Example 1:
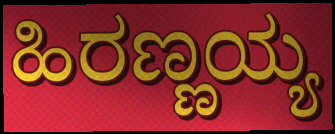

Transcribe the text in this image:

ಹಿರಣ್ಣಯ್ಯ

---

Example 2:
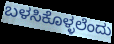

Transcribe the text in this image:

ಬಳಸಿಕೊಳ್ಳಲೆಂದು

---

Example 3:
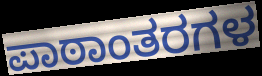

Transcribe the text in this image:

ಪಾಠಾಂತರಗಳ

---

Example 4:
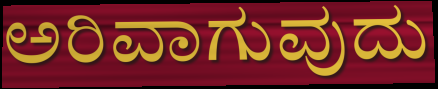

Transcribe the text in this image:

ಅರಿವಾಗುವುದು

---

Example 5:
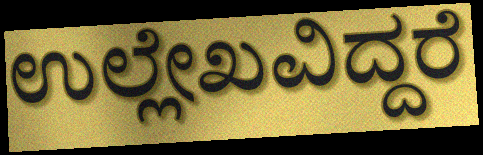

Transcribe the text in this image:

ಉಲ್ಲೇಖವಿದ್ದರೆ